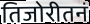
तिजोरीतनं